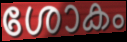
ശോകം